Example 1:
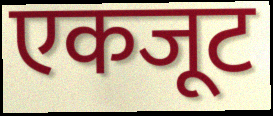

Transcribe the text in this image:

एकजूट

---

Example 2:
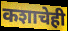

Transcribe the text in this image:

कशाचेही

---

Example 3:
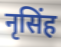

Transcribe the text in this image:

नृसिंह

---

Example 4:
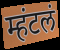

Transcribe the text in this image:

म्हंटलं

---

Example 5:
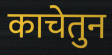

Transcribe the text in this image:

काचेतुन